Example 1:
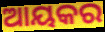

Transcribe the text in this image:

ଆୟକର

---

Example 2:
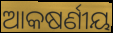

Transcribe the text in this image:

ଆକଷର୍ଣୀୟ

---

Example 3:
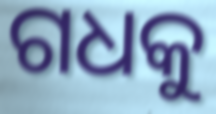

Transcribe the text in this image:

ଗଧକୁ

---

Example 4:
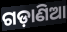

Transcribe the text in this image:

ଗଡ଼ାଣିଆ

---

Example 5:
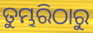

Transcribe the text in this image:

ତୁମ୍ଭରିଠାରୁ